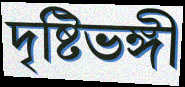
দৃষ্টিভঙ্গী